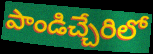
పాండిచ్చేరిలో